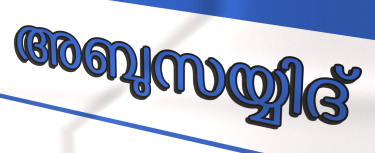
അബുസയ്യിദ്